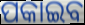
ପକାଇବ